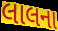
લાલના